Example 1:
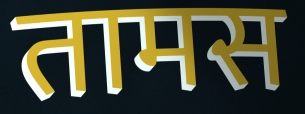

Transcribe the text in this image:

तामस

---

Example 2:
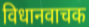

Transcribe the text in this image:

विधानवाचक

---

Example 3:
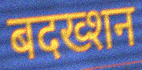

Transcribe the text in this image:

बदख्शन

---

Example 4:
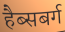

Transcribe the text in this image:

हैब्सबर्ग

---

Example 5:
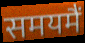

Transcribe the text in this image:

समयमैं